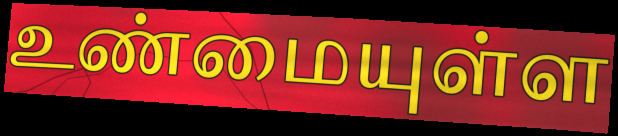
உண்மையுள்ள